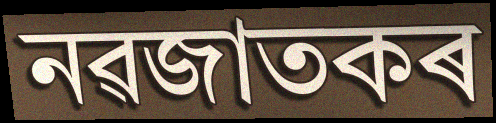
নৱজাতকৰ